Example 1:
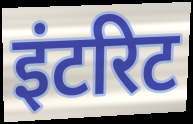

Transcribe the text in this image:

इंटरिट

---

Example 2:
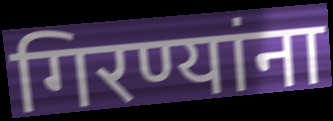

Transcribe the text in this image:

गिरण्यांना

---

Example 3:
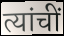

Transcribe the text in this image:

त्यांचीं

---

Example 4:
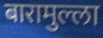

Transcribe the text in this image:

बारामुल्ला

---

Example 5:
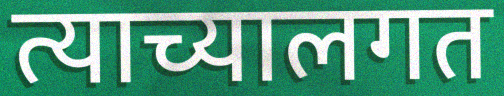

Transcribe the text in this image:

त्याच्यालगत